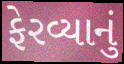
ફેરવ્યાનું